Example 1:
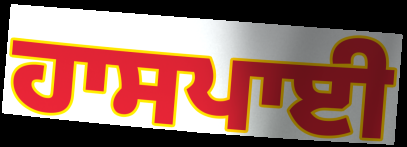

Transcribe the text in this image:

ਹਾਸਪਾਈ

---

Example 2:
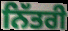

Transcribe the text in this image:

ਨਿੱਤਰੀ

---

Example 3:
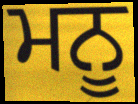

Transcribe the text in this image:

ਮਨੂ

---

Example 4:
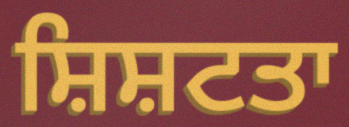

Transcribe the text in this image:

ਸ਼ਿਸ਼ਟਤਾ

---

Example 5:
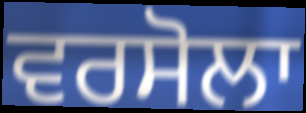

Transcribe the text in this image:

ਵਰਸੋਲਾ